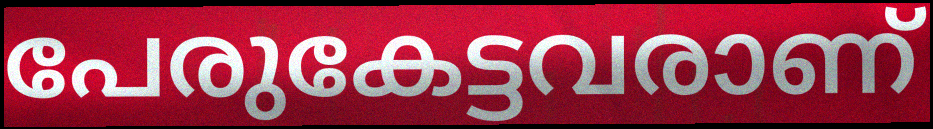
പേരുകേട്ടവരാണ്